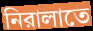
নিরালাতে